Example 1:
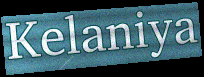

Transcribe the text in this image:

Kelaniya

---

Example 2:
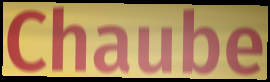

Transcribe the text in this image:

Chaube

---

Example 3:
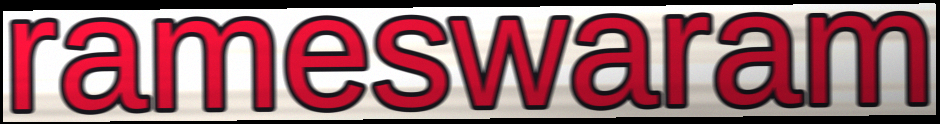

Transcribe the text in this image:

rameswaram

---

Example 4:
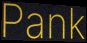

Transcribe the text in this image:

Pank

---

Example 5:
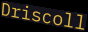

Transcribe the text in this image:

Driscoll